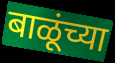
बाळूंच्या